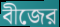
বীজের